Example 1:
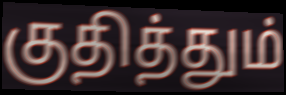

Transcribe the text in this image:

குதித்தும்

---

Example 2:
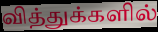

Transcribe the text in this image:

வித்துக்களில்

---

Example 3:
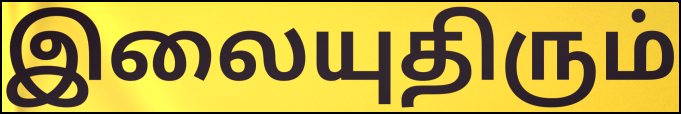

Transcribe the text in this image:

இலையுதிரும்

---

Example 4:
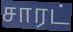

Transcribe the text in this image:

சாரட்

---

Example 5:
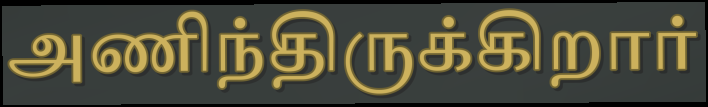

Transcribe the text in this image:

அணிந்திருக்கிறார்